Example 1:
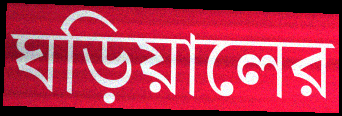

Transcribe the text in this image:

ঘড়িয়ালের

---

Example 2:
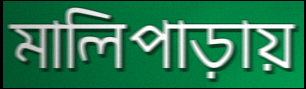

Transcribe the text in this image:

মালিপাড়ায়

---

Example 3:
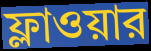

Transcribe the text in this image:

ফ্লাওয়ার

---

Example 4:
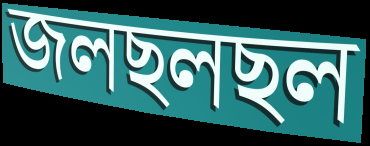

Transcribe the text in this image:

জলছলছল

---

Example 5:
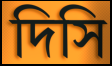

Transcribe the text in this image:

দিসি